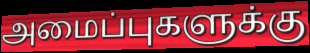
அமைப்புகளுக்கு